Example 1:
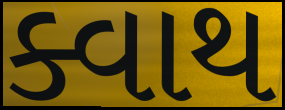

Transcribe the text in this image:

ક્વાથ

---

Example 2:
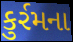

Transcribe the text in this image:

કુર્રમના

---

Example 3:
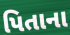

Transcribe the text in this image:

પિતાના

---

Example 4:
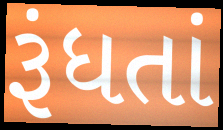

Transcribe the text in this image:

રૂંધતાં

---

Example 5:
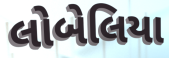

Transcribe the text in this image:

લોબેલિયા